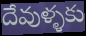
దేవుళ్ళకు